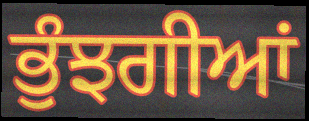
ਭੁੰਝਗੀਆਂ